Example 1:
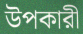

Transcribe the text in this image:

উপকারী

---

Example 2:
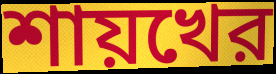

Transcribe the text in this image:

শায়খের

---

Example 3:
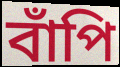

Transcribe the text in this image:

বাঁপি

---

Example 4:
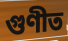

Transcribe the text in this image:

গুণীত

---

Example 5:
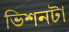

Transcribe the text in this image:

ভিশনটা